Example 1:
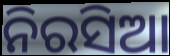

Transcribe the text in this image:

ନିରସିଆ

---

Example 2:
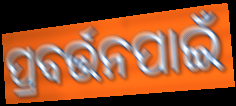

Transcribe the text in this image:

ପ୍ରବର୍ତ୍ତନପାଇଁ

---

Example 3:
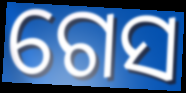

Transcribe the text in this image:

ଗେସ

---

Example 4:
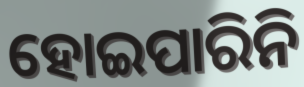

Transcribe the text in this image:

ହୋଇପାରିନି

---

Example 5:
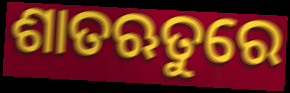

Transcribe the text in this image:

ଶାତଋତୁରେ